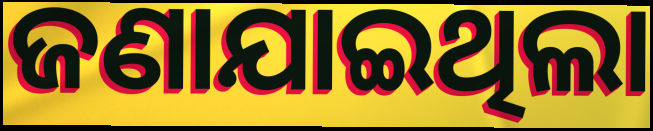
ଜଣାଯାଇଥିଲା